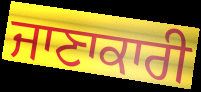
ਜਾਣਾਕਾਰੀ